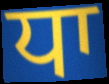
ਧਾ